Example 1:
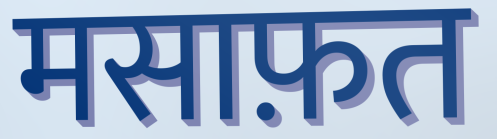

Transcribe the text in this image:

मसाफ़त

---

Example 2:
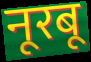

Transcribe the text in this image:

नूरबू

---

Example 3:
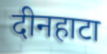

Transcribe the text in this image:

दीनहाटा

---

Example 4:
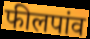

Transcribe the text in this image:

फीलपांव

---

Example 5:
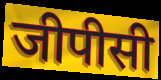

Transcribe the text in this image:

जीपीसी